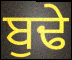
ਬੁਢੇ